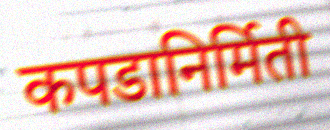
कपडानिर्मिती